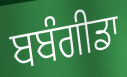
ਬਬੰਗੀਡਾ